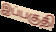
இப்பகுதி